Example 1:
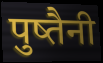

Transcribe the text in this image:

पुष्तैनी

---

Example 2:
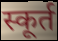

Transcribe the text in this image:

स्कूर्त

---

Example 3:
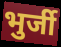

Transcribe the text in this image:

भुर्जी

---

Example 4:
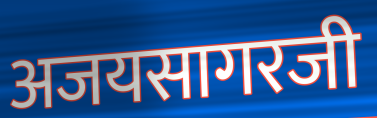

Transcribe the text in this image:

अजयसागरजी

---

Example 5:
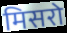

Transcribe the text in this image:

मिसरो